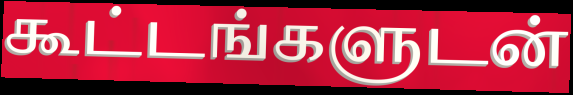
கூட்டங்களுடன்